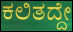
ಕಲಿತದ್ದೇ